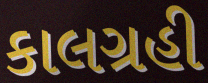
કાલગ્રહી